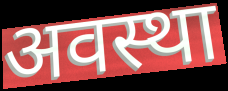
अवस्था